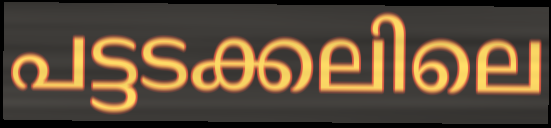
പട്ടടക്കലിലെ